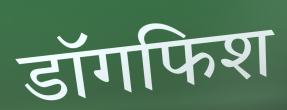
डॉगफिश